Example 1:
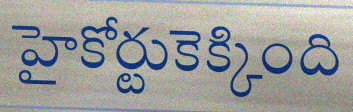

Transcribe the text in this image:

హైకోర్టుకెక్కింది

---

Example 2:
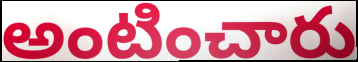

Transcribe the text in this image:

అంటించారు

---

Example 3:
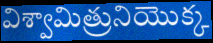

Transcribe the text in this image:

విశ్వామిత్రునియొక్క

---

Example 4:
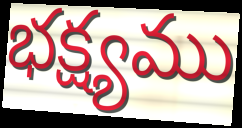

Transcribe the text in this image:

భక్ష్యము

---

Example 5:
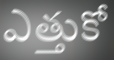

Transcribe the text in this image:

ఎత్తుకో